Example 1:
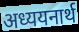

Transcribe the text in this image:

अध्ययनार्थ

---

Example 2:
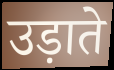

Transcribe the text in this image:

उड़ाते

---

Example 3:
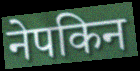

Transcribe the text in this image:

नेपकिन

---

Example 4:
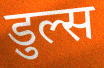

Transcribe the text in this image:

डुल्स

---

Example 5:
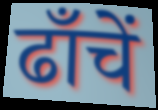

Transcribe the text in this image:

ढाँचें